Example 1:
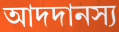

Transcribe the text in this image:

আদদানস্য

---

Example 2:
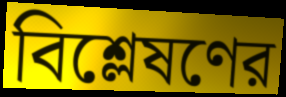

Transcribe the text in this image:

বিশ্লেষণের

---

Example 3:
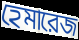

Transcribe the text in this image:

হেমারেজ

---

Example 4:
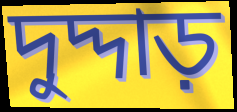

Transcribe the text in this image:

দুদ্দাড়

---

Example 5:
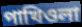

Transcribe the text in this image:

পাখিওলা